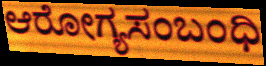
ಆರೋಗ್ಯಸಂಬಂಧಿ